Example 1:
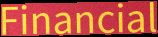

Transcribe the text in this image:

Financial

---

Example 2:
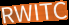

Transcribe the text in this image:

RWITC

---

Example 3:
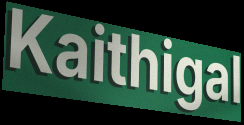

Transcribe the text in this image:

Kaithigal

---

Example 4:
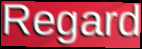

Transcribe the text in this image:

Regard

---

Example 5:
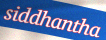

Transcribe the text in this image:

siddhantha